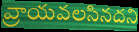
వ్రాయవలసినదని